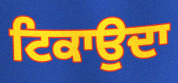
ਟਿਕਾਉਦਾ